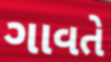
ગાવતે